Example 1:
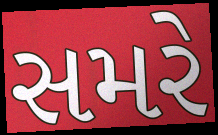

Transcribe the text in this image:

સમરે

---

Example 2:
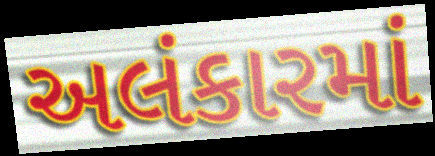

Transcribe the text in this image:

અલંકારમાં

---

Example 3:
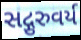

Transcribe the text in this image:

સદ્ગુરુવર્ય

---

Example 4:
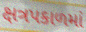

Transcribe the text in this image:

ક્ષત્રપકાળમાં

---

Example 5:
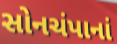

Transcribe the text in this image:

સોનચંપાનાં